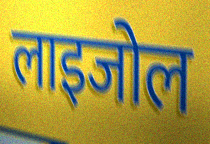
लाइजोल